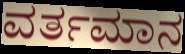
ವರ್ತಮಾನ